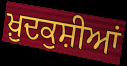
ਖ਼ੁਦਕੁਸ਼ੀਆਂ